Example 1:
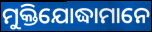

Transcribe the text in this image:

ମୁକ୍ତିଯୋଦ୍ଧାମାନେ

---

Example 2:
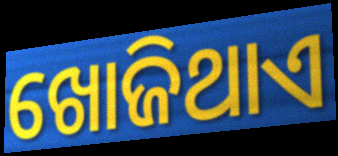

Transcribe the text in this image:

ଖୋଜିଥାଏ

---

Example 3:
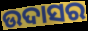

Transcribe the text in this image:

ଉଦାସର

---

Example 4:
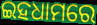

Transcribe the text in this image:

ଇହଧାମରେ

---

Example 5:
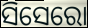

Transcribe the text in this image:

ସିସେରୋ